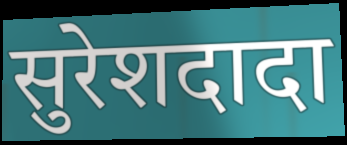
सुरेशदादा